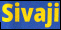
Sivaji